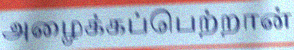
அழைக்கப்பெற்றான்